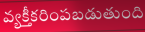
వ్యక్తీకరింపబడుతుంది